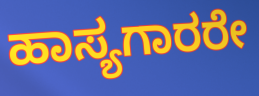
ಹಾಸ್ಯಗಾರರೇ